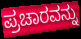
ಪ್ರಚಾರವನ್ನು